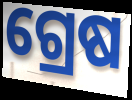
ଗ୍ରେଷ